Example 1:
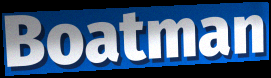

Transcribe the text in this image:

Boatman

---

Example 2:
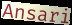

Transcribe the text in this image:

Ansari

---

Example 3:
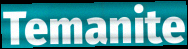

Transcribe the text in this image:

Temanite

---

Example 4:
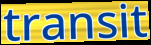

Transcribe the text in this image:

transit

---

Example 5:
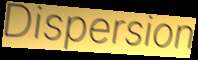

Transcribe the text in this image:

Dispersion